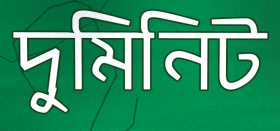
দুমিনিট